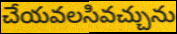
చేయవలసివచ్చును